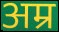
अम्र